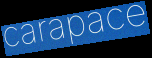
carapace